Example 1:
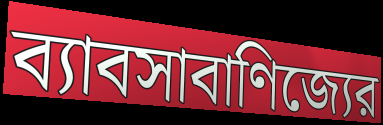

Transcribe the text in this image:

ব্যাবসাবাণিজ্যের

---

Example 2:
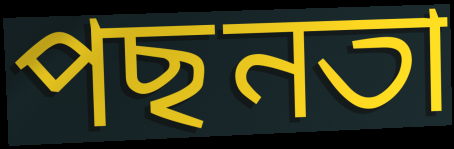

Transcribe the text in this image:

পছনতা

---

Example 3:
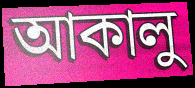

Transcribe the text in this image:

আকালু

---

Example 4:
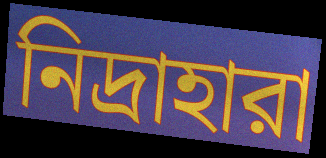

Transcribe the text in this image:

নিদ্রাহারা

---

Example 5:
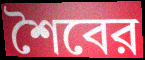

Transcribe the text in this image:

শৈবের